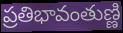
ప్రతిభావంతుణ్ణి